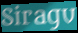
Siragu